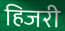
हिजरी